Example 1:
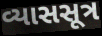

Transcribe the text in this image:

વ્યાસસૂત્ર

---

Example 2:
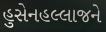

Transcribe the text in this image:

હુસેનહલ્લાજને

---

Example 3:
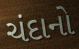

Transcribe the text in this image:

ચંદાનો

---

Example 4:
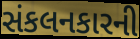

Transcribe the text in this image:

સંકલનકારની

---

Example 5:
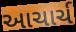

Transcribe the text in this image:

આચાર્ચ